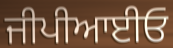
ਜੀਪੀਆਈਓ